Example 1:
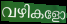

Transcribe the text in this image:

വഴികളോ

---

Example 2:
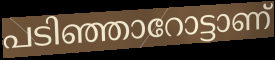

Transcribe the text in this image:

പടിഞ്ഞാറോട്ടാണ്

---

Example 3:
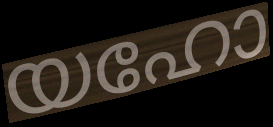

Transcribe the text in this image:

യഹോ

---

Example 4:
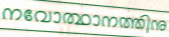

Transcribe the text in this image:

നവോത്ഥാനത്തിനു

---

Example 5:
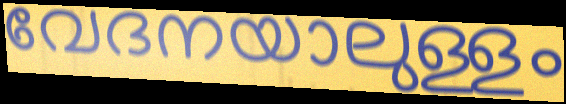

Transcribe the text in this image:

വേദനയാലുള്ളം